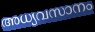
അധ്യവസാനം